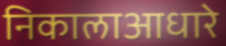
निकालाआधारे